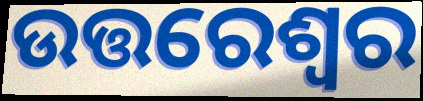
ଉତ୍ତରେଶ୍ୱର